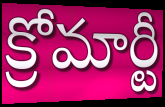
క్రోమార్టీ